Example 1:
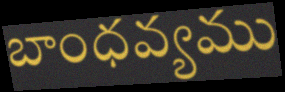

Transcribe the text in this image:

బాంధవ్యము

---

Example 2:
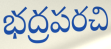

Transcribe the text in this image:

భద్రపరచి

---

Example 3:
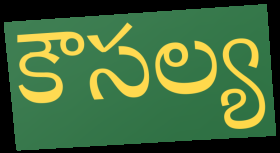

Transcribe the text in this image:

కౌసల్య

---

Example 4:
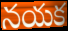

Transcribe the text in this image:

నయక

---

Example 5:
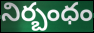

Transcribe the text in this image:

నిర్బంధం